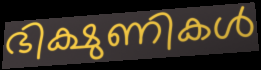
ഭിക്ഷുണികൾ